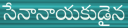
సేనానాయకుడైన